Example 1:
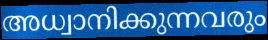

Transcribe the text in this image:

അധ്വാനിക്കുന്നവരും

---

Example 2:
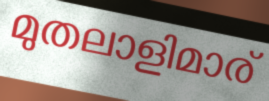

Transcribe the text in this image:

മുതലാളിമാര്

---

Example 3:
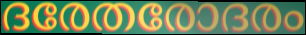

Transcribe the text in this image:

ദരേതരോദരം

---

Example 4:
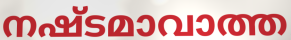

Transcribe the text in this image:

നഷ്ടമാവാത്ത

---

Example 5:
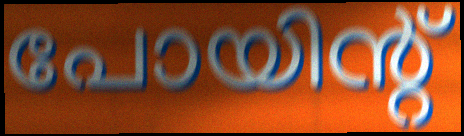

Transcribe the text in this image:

പോയിന്റ്